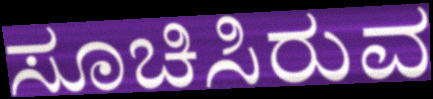
ಸೂಚಿಸಿರುವ